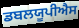
ਡਬਲਯੂਪੀਐਸ